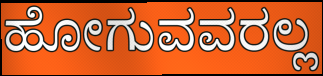
ಹೋಗುವವರಲ್ಲ